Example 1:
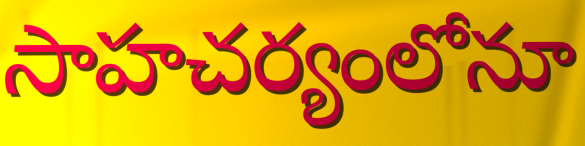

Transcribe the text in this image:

సాహచర్యంలోనూ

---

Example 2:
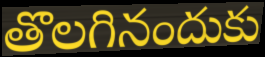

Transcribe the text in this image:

తొలగినందుకు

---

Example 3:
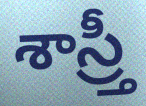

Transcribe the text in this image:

శాస్ర్తీ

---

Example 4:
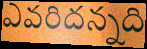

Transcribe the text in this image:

ఎవరిదన్నది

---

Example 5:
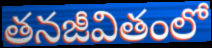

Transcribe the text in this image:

తనజీవితంలో